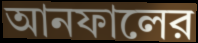
আনফালের